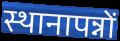
स्थानापन्नों